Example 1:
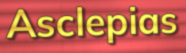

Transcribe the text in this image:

Asclepias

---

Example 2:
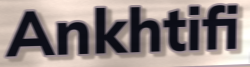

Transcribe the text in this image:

Ankhtifi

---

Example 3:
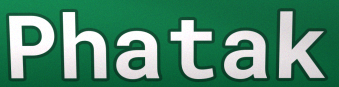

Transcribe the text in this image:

Phatak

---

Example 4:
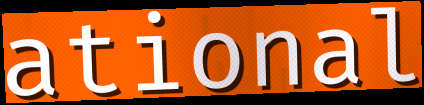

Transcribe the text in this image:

ational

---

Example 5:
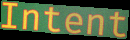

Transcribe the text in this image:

Intent